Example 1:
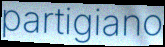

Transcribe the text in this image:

partigiano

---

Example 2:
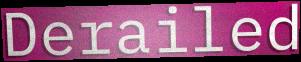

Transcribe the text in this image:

Derailed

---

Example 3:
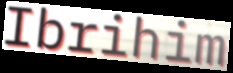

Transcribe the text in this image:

Ibrihim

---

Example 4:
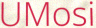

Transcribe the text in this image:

UMosi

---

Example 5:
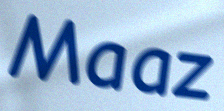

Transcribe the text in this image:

Maaz